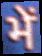
भें